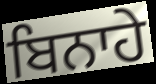
ਬਿਨਾਹੇ